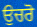
ਉਚਰੋ